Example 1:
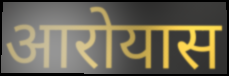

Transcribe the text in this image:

आरोयास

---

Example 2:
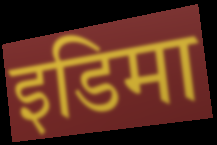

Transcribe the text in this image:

इडिमा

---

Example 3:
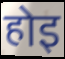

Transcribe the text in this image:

होइ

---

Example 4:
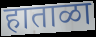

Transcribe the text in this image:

हाताळा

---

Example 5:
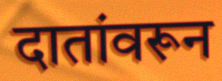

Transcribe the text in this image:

दातांवरून